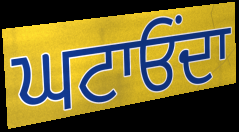
ਘਟਾਓਂਦਾ